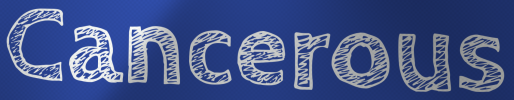
Cancerous